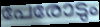
പേരോടും